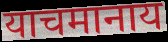
याचमानाय